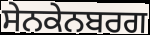
ਸੇਨਕੇਨਬਰਗ